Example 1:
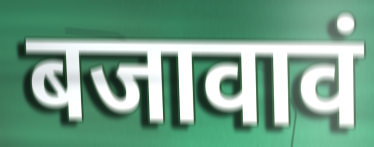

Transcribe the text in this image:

बजावावं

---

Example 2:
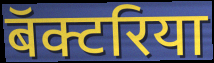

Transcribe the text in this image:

बॅक्टरिया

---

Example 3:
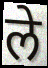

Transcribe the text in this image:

ले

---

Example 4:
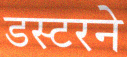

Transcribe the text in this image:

डस्टरने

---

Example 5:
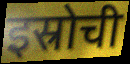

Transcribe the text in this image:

इस्रोची